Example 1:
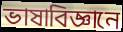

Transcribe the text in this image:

ভাষাবিজ্ঞানে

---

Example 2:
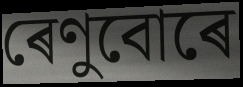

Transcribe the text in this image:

ৰেণুবোৰে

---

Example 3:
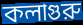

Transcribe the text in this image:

কলাগুৰু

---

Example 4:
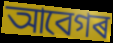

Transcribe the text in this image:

আবেগৰ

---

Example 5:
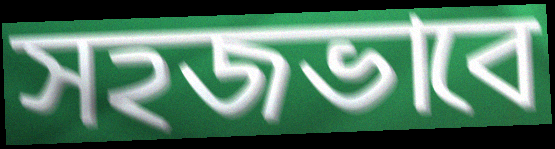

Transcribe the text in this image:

সহজভাবে